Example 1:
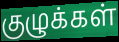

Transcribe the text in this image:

குழுக்கள்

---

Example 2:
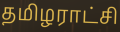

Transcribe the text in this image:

தமிழராட்சி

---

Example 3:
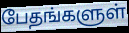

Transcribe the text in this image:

பேதங்களுள்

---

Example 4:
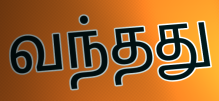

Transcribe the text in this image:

வந்தது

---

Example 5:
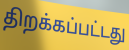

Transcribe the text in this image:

திறக்கப்பட்டது